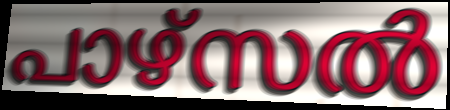
പാഴ്സൽ